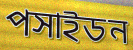
পসাইডন